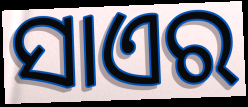
ସାଏର